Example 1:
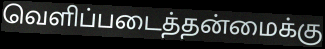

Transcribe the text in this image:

வெளிப்படைத்தன்மைக்கு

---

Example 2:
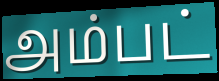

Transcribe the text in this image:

அம்பட்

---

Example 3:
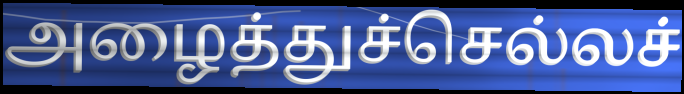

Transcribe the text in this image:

அழைத்துச்செல்லச்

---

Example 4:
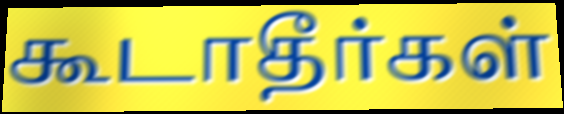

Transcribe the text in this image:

கூடாதீர்கள்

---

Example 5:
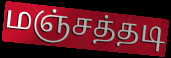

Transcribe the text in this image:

மஞ்சத்தடி